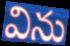
విను